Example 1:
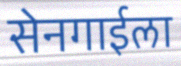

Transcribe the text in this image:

सेनगाईला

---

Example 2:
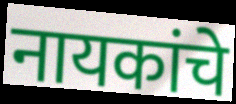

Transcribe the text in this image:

नायकांचे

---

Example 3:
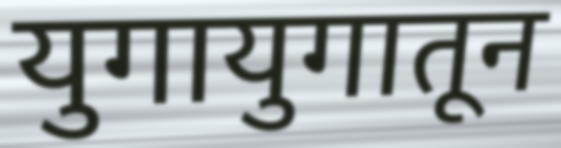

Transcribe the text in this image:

युगायुगातून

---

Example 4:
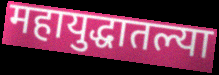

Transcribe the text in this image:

महायुद्धातल्या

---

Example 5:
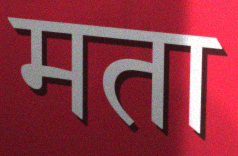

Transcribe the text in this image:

मता